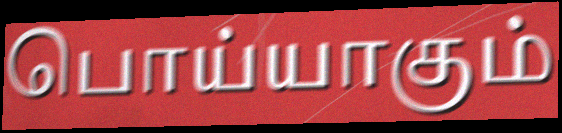
பொய்யாகும்